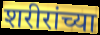
शरीरांच्या